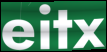
eitx